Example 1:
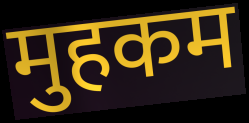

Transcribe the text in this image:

मुहकम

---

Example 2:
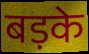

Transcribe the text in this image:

बड़के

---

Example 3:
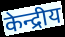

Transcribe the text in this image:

केन्द्रीय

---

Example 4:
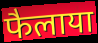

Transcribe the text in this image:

फैलाया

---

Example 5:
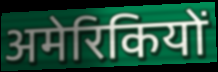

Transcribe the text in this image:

अमेरिकियों